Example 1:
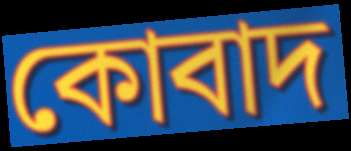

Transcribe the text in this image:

কোবাদ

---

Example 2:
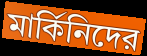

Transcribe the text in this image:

মার্কিনিদের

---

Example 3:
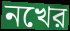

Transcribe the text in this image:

নখের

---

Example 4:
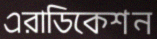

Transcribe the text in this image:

এরাডিকেশন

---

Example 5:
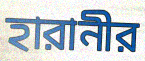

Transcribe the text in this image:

হারানীর